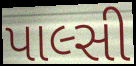
પાલ્સી